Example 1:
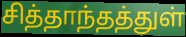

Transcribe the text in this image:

சித்தாந்தத்துள்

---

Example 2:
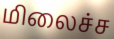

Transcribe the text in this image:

மிலைச்ச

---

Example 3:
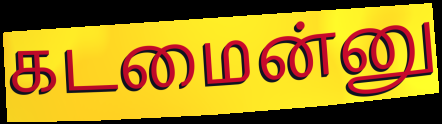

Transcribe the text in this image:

கடமைன்னு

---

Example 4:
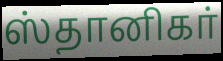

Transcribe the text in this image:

ஸ்தானிகர்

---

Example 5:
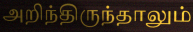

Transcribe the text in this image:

அறிந்திருந்தாலும்